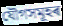
যৌগসমূহৰ